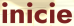
inicie